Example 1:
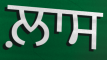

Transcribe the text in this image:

ਲ਼ਾਸ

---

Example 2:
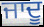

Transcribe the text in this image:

ਜਾਦੂ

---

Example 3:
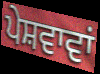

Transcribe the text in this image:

ਪੇਸ਼ਵਾਵਾਂ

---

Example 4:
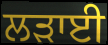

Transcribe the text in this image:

ਲੜਾਈ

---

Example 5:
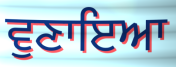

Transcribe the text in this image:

ਵੁਣਾਇਆ